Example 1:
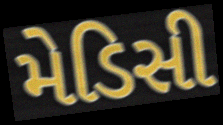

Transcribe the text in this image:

મેડિસી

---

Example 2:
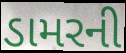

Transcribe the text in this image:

ડામરની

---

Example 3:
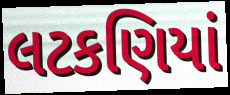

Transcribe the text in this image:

લટકણિયાં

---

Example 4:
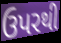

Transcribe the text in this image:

ઉપરથી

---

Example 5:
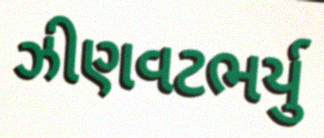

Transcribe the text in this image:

ઝીણવટભર્યુ